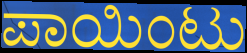
ಪಾಯಿಂಟು